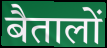
बैतालों